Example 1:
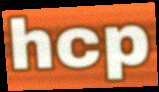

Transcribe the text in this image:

hcp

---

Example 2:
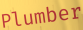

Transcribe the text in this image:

Plumber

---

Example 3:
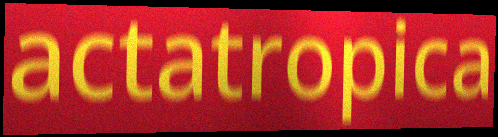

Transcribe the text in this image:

actatropica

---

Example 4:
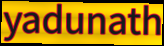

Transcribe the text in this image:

yadunath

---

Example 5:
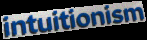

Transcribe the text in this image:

intuitionism